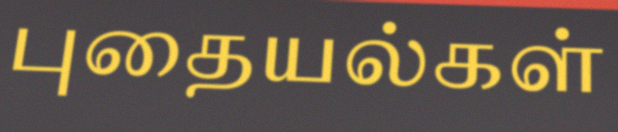
புதையல்கள்